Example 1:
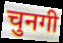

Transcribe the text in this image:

चुनगी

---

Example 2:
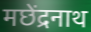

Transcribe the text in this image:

मछेंद्रनाथ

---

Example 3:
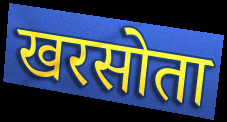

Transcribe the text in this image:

खरसोता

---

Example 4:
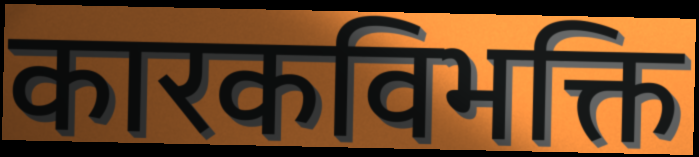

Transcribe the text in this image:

कारकविभक्ति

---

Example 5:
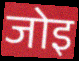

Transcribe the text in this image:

जोइ